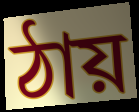
ঠায়